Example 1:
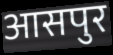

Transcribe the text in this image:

आसपुर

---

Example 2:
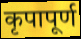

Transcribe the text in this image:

कृपापूर्ण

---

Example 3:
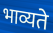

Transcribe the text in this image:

भाव्यते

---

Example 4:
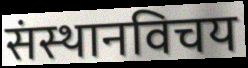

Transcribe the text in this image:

संस्थानविचय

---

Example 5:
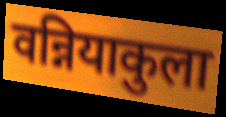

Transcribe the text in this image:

वन्नियाकुला